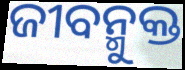
ଜୀବନ୍ମୁକ୍ତ